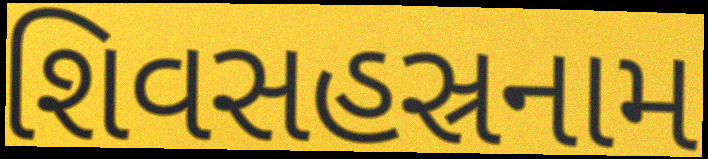
શિવસહસ્રનામ